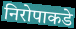
निरोपाकडे